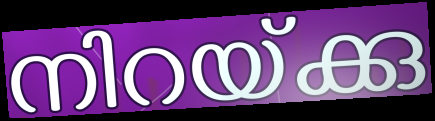
നിറയ്‌ക്കു